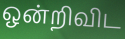
ஒன்றிவிட